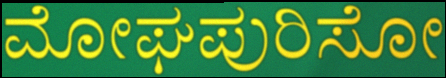
ಮೋಘಪುರಿಸೋ